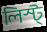
লিস্ট্